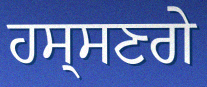
ਹਸ੍ਸਣਗੇ